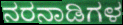
ನರನಾಡಿಗಳ